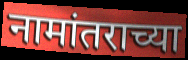
नामांतराच्या